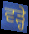
ਵੜ੍ਹੇ